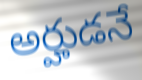
అర్హుడనే